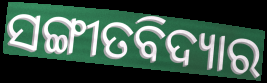
ସଙ୍ଗୀତବିଦ୍ୟାର